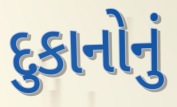
દુકાનોનું